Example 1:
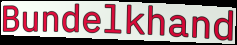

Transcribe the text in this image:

Bundelkhand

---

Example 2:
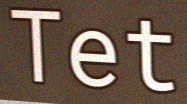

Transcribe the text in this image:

Tet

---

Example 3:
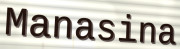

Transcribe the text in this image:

Manasina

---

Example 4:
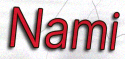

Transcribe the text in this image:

Nami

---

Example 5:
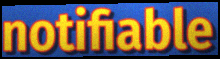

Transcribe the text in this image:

notifiable